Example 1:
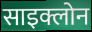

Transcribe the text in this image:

साइक्लोन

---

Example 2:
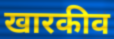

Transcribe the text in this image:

खारकीव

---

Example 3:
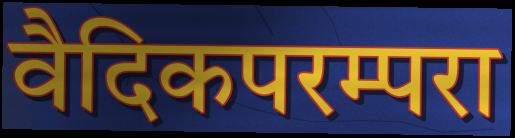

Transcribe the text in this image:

वैदिकपरम्परा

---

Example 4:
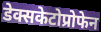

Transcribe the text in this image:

डेक्सकेटोप्रोफेन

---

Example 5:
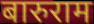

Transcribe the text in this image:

बारुराम